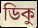
ডিকু